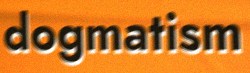
dogmatism